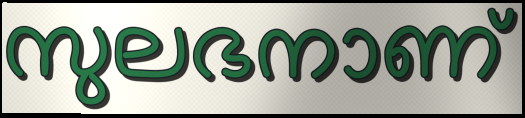
സുലഭനാണ്